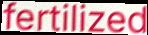
fertilized